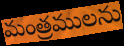
మంత్రములను